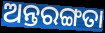
ଅନ୍ତରଙ୍ଗତା